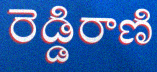
రెడ్డిరాణి